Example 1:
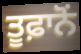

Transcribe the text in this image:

ਤੂਫ਼ਾਨੋਂ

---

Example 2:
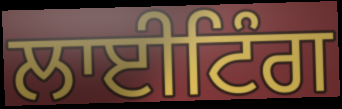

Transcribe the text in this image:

ਲਾਈਟਿੰਗ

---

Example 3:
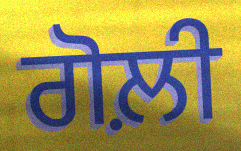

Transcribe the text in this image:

ਗੋਲ਼ੀ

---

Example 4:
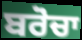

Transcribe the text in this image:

ਬਰੋਚਾ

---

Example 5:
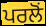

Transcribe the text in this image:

ਪਰਲੋਂ